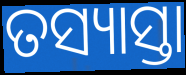
ତସ୍ୟାସ୍ତା